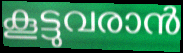
കൂട്ടുവരാൻ